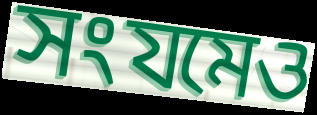
সংযমেও